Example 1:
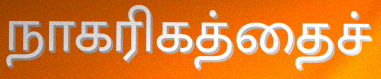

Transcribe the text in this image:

நாகரிகத்தைச்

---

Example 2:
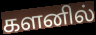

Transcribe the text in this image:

களனில்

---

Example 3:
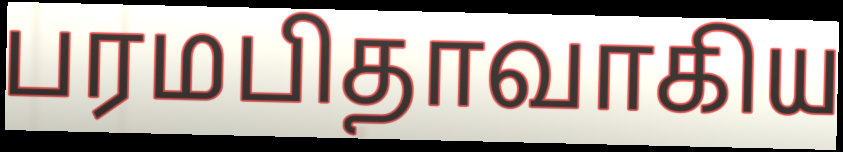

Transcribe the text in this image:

பரமபிதாவாகிய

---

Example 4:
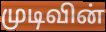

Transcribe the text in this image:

முடிவின்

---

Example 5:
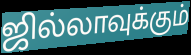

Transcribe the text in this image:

ஜில்லாவுக்கும்